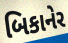
બિકાનેર